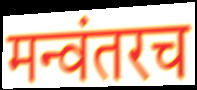
मन्वंतरच